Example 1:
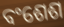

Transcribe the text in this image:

ବଂଶେଶ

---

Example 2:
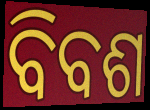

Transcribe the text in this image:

ବିବଶ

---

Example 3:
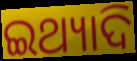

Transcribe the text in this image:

ଇଥ୍ୟାଦି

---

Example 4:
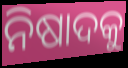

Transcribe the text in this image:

ନିଷାଦକୁ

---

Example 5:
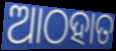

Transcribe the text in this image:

ଆଠହାତ